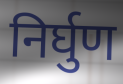
निर्घुण